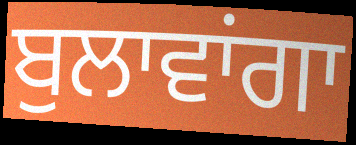
ਬੁਲਾਵਾਂਗਾ